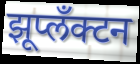
झूप्लँक्टन